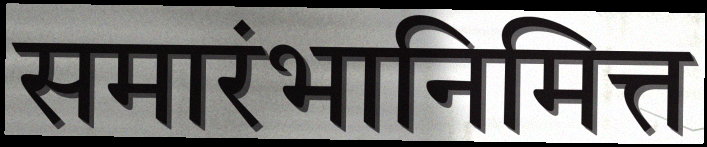
समारंभानिमित्त